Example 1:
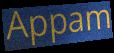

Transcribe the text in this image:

Appam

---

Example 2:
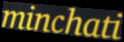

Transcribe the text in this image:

minchati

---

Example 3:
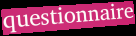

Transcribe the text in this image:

questionnaire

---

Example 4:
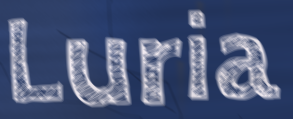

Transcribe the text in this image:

Luria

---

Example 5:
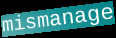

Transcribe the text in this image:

mismanage